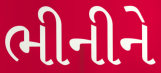
ભીનીને